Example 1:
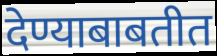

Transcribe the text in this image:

देण्याबाबतीत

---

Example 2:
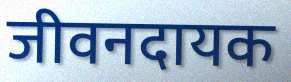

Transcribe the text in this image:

जीवनदायक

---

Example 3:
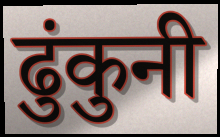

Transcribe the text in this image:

ढुंकुनी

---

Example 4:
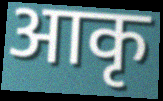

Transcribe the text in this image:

आकृ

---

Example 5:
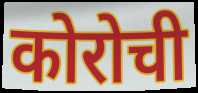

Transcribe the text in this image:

कोरोची